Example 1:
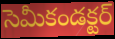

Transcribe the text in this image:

సెమీకండక్టర్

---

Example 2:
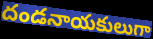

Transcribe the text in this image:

దండనాయకులుగా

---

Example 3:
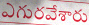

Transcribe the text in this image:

ఎగురవేశారు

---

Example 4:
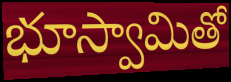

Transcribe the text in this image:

భూస్వామితో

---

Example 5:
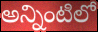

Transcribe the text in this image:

అన్నింటిలో